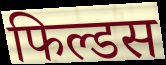
फिल्डस